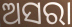
ଅସରା